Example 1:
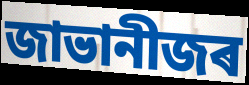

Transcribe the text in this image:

জাভানীজৰ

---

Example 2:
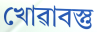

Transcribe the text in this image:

খোৱাবস্তু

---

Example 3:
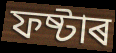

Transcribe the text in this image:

ফষ্টাৰ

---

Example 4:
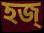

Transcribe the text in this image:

হজ্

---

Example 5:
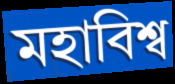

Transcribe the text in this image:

মহাবিশ্ব